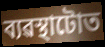
ব্যৱস্থাটোত